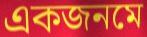
একজনমে